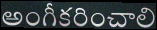
అంగీకరించాలి